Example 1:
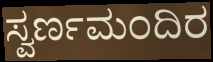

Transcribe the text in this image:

ಸ್ವರ್ಣಮಂದಿರ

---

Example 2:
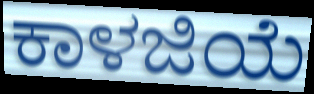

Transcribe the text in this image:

ಕಾಳಜಿಯೆ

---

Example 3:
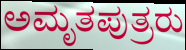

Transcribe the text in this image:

ಅಮೃತಪುತ್ರರು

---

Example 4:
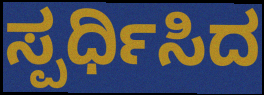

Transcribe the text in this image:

ಸ್ಪರ್ಧಿಸಿದ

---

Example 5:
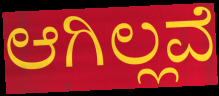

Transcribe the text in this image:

ಆಗಿಲ್ಲವೆ